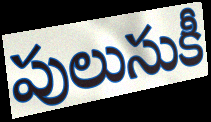
పులుసుకీ